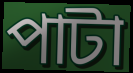
পাটা